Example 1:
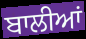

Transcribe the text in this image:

ਬਾਲੀਆਂ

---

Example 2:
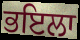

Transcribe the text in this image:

ਭਇਲਾ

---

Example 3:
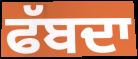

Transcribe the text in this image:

ਫੱਬਦਾ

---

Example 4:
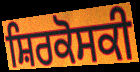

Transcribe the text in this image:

ਸ਼ਿਰਕੋਸਕੀ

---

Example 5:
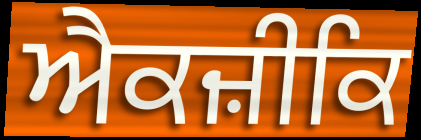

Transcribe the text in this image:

ਐਕਜ਼ੀਕਿ